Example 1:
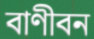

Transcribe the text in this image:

বাণীবন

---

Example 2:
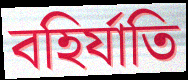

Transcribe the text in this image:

বহির্যাতি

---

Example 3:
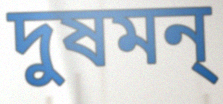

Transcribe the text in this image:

দুষমন্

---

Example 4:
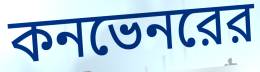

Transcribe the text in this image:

কনভেনরের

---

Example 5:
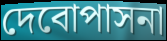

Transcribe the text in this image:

দেবোপাসনা